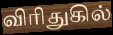
விரிதுகில்